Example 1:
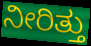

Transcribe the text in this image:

ನೀರಿತ್ತು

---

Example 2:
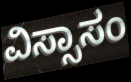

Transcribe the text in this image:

ವಿಸ್ಸಾಸಂ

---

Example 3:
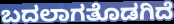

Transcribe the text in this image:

ಬದಲಾಗತೊಡಗಿದೆ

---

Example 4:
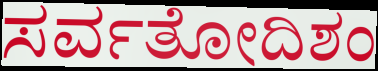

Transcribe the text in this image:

ಸರ್ವತೋದಿಶಂ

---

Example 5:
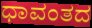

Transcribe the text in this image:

ಧಾವಂತದ